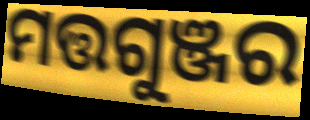
ମତ୍ତଗୁଞ୍ଜର